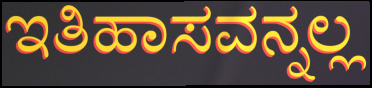
ಇತಿಹಾಸವನ್ನಲ್ಲ